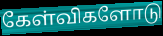
கேள்விகளோடு